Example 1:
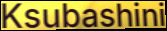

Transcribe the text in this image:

Ksubashini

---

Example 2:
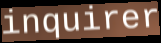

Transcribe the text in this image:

inquirer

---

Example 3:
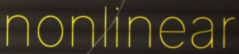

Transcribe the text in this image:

nonlinear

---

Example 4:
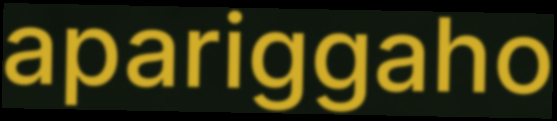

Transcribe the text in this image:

apariggaho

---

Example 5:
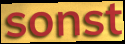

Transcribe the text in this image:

sonst